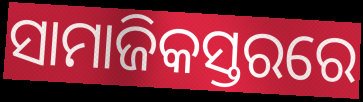
ସାମାଜିକସ୍ତରରେ